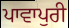
ਪਾਵਾਪੁਰੀ